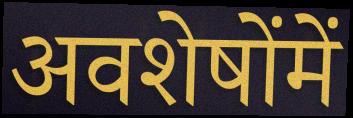
अवशेषोंमें